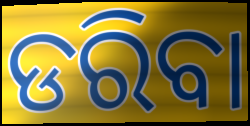
ଡରିବା